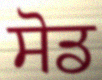
ਸੋਡ